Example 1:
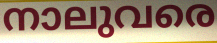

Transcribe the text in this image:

നാലുവരെ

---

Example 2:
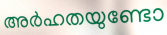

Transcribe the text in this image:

അർഹതയുണ്ടോ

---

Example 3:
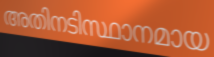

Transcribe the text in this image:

അതിനടിസ്ഥാനമായ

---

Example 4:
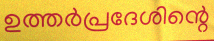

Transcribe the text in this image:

ഉത്തർപ്രദേശിന്റെ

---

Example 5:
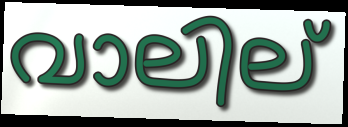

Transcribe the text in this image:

വാലില്